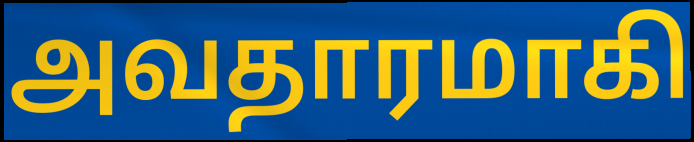
அவதாரமாகி